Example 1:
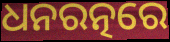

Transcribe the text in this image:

ଧନରତ୍ନରେ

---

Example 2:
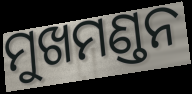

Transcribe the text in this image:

ମୁଖମଣ୍ଡନ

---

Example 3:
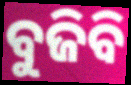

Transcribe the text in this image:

ବୁଜିବି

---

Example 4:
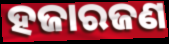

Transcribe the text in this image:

ହଜାରଜଣ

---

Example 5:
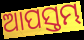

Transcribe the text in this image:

ଆପସ୍ତମ୍ଭ